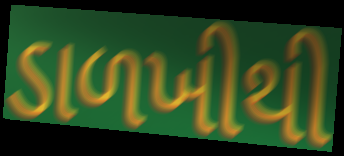
ડાળખીથી